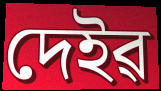
দেইৱ